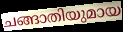
ചങ്ങാതിയുമായ